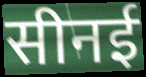
सीनई